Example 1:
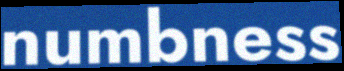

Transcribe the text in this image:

numbness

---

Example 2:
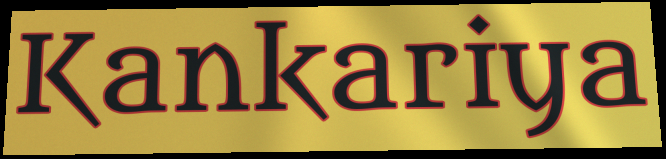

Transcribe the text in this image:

Kankariya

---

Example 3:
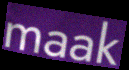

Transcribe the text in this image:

maak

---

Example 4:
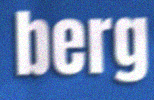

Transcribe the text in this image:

berg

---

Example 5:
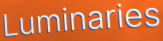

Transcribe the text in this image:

Luminaries